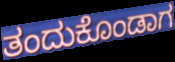
ತಂದುಕೊಂಡಾಗ